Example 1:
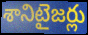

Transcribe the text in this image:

శానిటైజర్లు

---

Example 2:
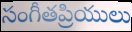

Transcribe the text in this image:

సంగీతప్రియులు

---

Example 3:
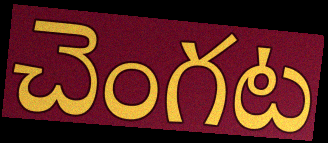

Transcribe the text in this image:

చెంగట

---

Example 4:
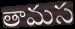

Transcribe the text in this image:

తామస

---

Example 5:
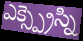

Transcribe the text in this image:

ఎక్స్ప్రెస్ని